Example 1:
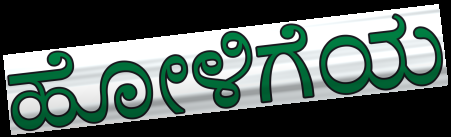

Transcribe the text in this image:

ಹೋಳಿಗೆಯ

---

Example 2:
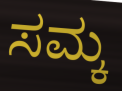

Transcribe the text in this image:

ಸಮ್ಕ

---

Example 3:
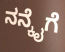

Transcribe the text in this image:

ನನ್ಕೈಗೆ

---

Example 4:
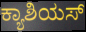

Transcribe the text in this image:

ಕ್ಯಾಶಿಯಸ್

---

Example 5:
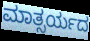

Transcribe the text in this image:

ಮಾತ್ಸರ್ಯದ